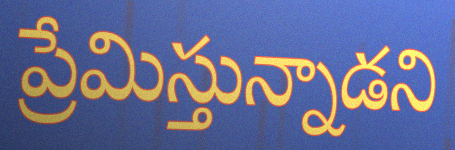
ప్రేమిస్తున్నాడని